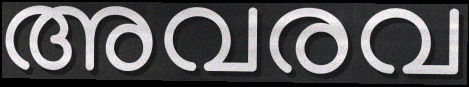
അവരവ